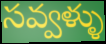
సవ్వళ్ళు